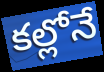
కల్లోనే